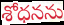
శోధనను